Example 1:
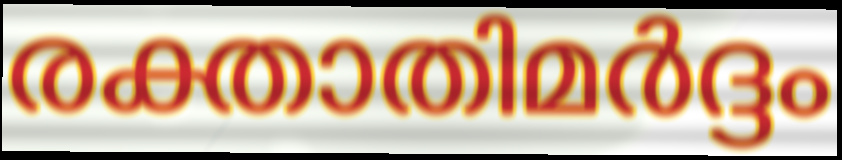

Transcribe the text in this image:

രക്താതിമർദ്ദം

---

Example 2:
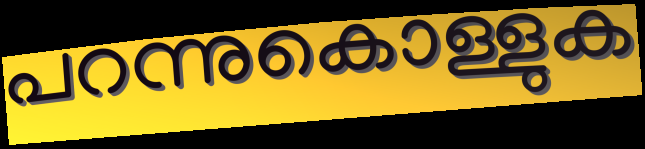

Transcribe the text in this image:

പറന്നുകൊള്ളുക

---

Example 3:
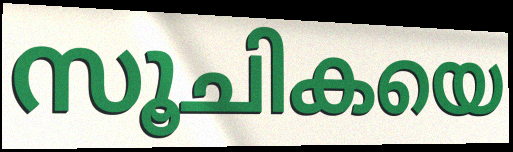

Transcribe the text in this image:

സൂചികയെ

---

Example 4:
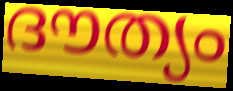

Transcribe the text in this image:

ദൗത്യം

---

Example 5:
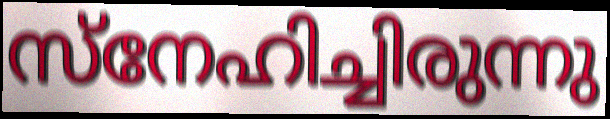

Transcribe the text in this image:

സ്നേഹിച്ചിരുന്നു